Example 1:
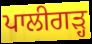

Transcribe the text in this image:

ਪਾਲੀਗੜ੍ਹ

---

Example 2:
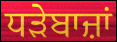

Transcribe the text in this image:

ਧੜੇਬਾਜ਼ਾਂ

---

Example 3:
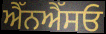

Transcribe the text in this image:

ਐੱਨਐੱਸਓ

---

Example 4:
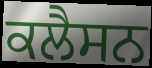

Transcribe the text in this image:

ਕਲੈਸਨ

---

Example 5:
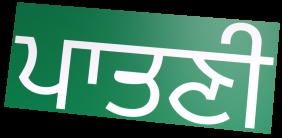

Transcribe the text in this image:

ਪਾਤਣੀ